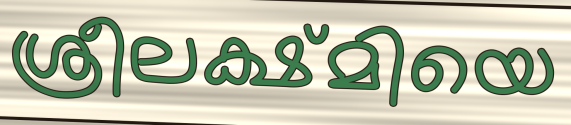
ശ്രീലക്ഷ്മിയെ